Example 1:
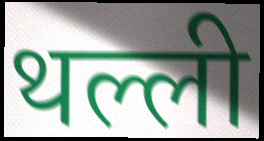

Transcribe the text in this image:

थल्ली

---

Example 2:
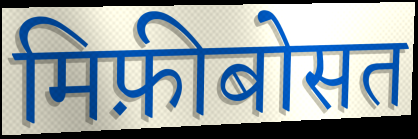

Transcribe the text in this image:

मिफ़ीबोसत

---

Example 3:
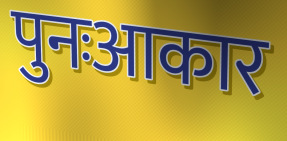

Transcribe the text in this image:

पुनःआकार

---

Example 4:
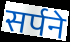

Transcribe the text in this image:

सर्पने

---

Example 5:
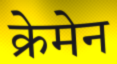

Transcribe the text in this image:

क्रेमेन